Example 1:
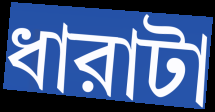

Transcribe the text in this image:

ধারাটা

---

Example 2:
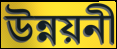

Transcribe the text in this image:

উন্নয়নী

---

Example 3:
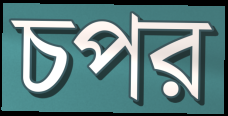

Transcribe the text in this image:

চপর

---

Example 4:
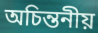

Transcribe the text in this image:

অচিন্তনীয়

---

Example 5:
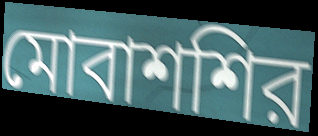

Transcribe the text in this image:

মোবাশশির